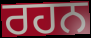
ਰਹਨ